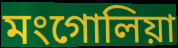
মংগোলিয়া